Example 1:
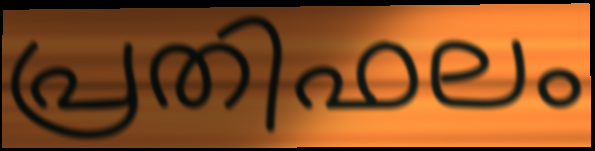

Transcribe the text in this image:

പ്രതിഫലം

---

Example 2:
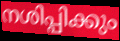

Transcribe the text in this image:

നശിപ്പിക്കും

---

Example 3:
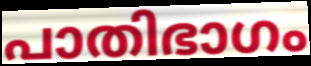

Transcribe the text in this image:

പാതിഭാഗം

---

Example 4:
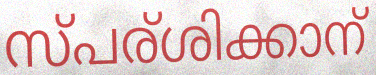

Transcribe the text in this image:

സ്പര്ശിക്കാന്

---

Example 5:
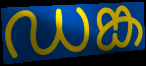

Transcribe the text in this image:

ഡങ്ക